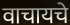
वाचायचे